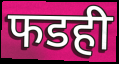
फडही